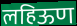
लहिऊण